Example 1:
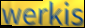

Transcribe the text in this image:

werkis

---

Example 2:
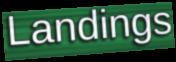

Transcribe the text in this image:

Landings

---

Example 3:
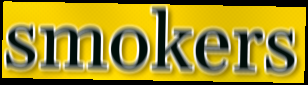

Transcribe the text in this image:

smokers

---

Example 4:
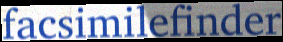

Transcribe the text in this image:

facsimilefinder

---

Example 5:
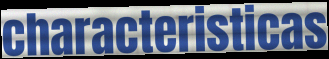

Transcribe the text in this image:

characteristicas